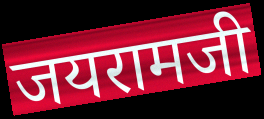
जयरामजी